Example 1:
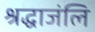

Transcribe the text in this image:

श्रद्धाजंलि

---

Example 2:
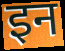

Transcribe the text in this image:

इन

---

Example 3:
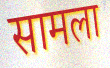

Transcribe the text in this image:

सामला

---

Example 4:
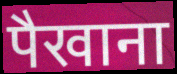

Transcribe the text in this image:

पैखाना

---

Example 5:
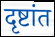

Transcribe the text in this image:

दृष्टांत